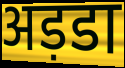
अड़डा